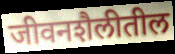
जीवनशैलीतील